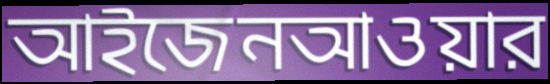
আইজেনআওয়ার